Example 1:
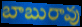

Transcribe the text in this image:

బాబురావు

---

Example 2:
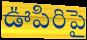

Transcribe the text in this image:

ఊపిరిపై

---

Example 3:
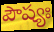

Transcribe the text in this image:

పౌష్యః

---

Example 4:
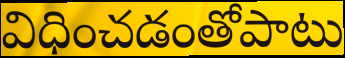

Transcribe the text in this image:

విధించడంతోపాటు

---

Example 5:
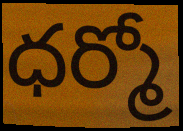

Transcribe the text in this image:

ధర్మో